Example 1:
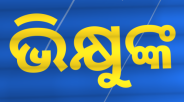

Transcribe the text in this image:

ଭିକ୍ଷୁଙ୍କ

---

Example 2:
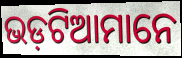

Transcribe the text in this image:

ଭଡ଼ଟିଆମାନେ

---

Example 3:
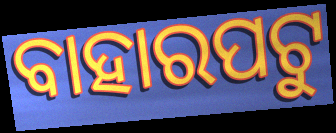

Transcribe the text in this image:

ବାହାରପଟୁ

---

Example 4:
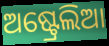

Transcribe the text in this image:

ଅଷ୍ଟ୍ରେଲିଆ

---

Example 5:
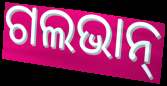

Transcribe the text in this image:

ଗଲଭାନ୍